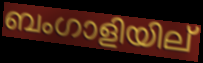
ബംഗാളിയില്